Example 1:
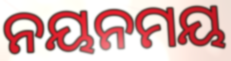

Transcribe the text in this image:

ନୟନମୟ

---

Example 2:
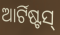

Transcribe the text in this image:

ଆର୍ଟିଷ୍ଟସ୍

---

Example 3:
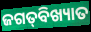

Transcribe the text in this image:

ଜଗତ୍‌ବିଖ୍ୟାତ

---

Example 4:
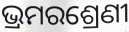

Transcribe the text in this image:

ଭ୍ରମରଶ୍ରେଣୀ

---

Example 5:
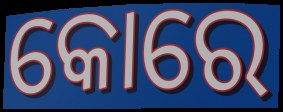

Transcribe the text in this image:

କୋରେ